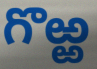
గొఱ్ఱ